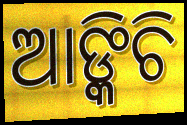
ଆଙ୍କିଚି